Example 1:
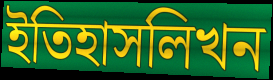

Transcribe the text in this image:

ইতিহাসলিখন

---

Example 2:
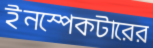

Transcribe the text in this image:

ইনস্পেকটারের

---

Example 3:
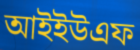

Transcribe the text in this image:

আইইউএফ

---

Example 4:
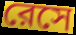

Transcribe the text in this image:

রেসে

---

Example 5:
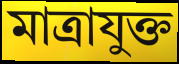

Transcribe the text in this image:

মাত্রাযুক্ত